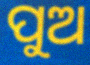
ପୁଅ